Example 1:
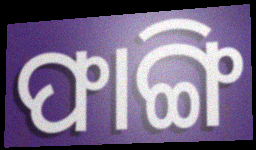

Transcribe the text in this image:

ଫାଙ୍ଗି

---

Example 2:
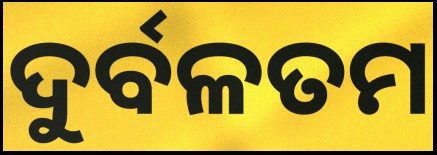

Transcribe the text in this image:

ଦୁର୍ବଳତମ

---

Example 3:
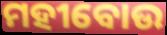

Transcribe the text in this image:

ମହୀବୋଉ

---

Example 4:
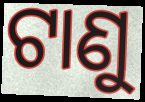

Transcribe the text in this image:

ଟାଣୁ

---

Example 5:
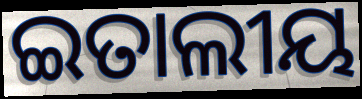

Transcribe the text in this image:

ଇତାଲୀୟ